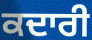
ਕਦਾਰੀ